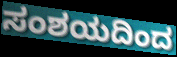
ಸಂಶಯದಿಂದ